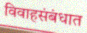
विवाहसंबंधात